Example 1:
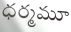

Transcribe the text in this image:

ధర్మమూ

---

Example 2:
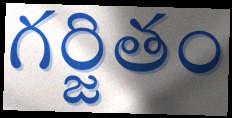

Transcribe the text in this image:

గర్జితం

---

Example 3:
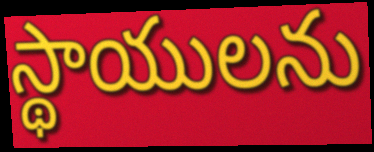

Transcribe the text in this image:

స్థాయులను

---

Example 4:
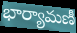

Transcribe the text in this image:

భార్యామణీ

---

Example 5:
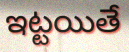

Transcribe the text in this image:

ఇట్టయితే